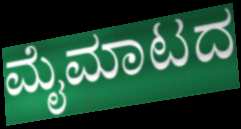
ಮೈಮಾಟದ